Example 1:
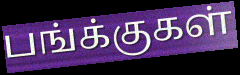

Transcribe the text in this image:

பங்க்குகள்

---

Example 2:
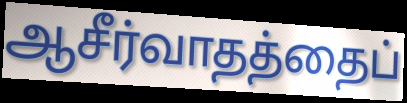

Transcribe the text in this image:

ஆசீர்வாதத்தைப்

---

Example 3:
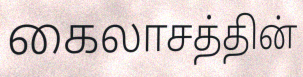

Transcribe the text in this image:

கைலாசத்தின்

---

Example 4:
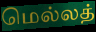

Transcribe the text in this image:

மெல்லத்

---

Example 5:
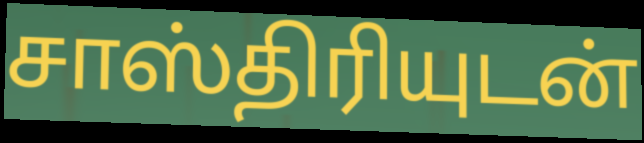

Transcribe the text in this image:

சாஸ்திரியுடன்